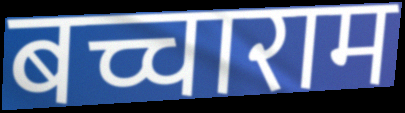
बच्चाराम